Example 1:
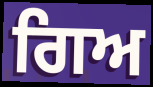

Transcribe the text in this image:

ਗਿਅ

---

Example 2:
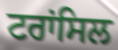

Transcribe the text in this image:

ਟਰਾਂਸਿਲ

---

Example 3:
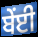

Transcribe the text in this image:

ਬੇਂਈ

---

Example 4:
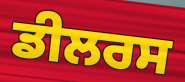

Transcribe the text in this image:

ਡੀਲਰਸ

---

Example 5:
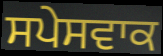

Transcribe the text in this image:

ਸਪੇਸਵਾਕ